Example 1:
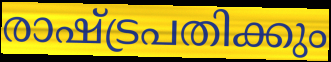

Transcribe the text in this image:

രാഷ്ട്രപതിക്കും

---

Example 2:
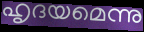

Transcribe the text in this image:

ഹൃദയമെന്നു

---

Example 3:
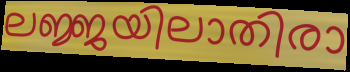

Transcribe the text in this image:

ലജ്ജയിലാതിരാ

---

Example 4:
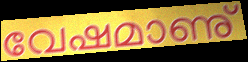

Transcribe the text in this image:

വേഷമാണു്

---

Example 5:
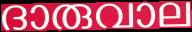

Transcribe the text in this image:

ദാരുവാല